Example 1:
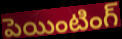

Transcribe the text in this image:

పెయింటింగ్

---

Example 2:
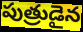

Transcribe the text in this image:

పుత్రుడైన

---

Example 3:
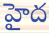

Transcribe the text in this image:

హైద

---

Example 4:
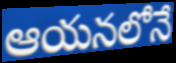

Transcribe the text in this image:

ఆయనలోనే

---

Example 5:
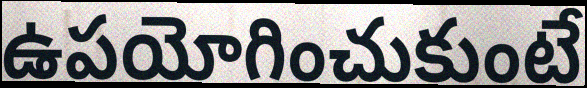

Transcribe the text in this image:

ఉపయోగించుకుంటే